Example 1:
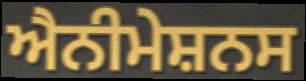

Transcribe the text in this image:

ਐਨੀਮੇਸ਼ਨਸ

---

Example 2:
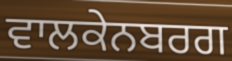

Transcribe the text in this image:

ਵਾਲਕੇਨਬਰਗ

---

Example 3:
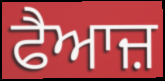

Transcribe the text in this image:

ਫੈਆਜ਼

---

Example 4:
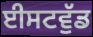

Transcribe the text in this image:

ਈਸਟਵੁੱਡ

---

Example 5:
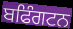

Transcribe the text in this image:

ਬਫਿੰਗਟਨ